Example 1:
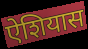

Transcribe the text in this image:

ऐशियास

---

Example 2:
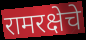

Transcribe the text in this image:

रामरक्षेचे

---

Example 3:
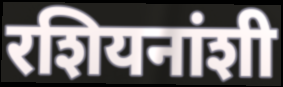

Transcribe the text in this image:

रशियनांशी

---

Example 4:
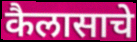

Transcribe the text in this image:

कैलासाचे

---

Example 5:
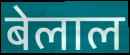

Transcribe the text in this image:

बेलाल